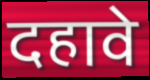
दहावे